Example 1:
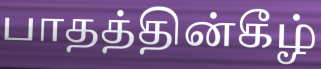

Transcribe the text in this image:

பாதத்தின்கீழ்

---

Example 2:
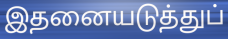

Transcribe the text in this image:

இதனையடுத்துப்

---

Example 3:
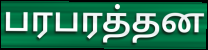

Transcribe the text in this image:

பரபரத்தன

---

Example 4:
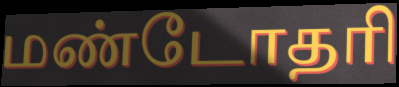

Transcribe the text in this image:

மண்டோதரி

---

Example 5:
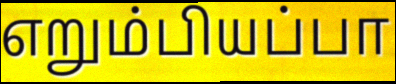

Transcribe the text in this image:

எறும்பியப்பா